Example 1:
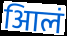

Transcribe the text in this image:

आिलं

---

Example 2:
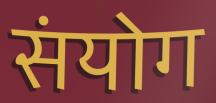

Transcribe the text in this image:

संयोग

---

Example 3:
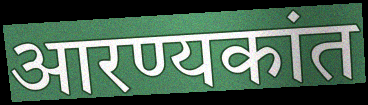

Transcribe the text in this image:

आरण्यकांत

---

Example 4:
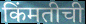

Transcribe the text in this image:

किंमतीची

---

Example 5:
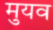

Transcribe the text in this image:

मुयव